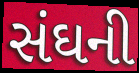
સંઘની